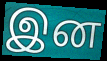
இன